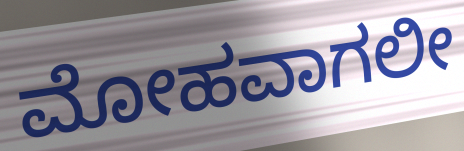
ಮೋಹವಾಗಲೀ